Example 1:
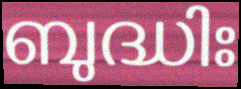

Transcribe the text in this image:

ബുദ്ധിഃ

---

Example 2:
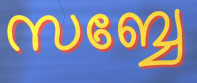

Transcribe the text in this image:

സബ്ബേ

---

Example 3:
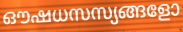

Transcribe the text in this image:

ഔഷധസസ്യങ്ങളോ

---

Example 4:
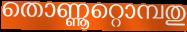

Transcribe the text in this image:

തൊണ്ണൂറ്റൊമ്പതു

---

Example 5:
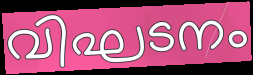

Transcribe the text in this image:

വിഘടനം